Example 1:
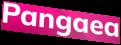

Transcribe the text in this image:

Pangaea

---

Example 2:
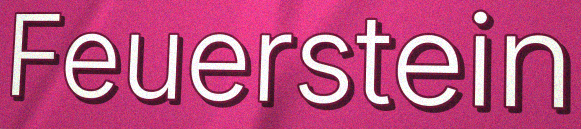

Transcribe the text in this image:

Feuerstein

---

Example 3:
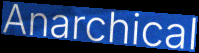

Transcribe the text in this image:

Anarchical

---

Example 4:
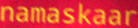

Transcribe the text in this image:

namaskaar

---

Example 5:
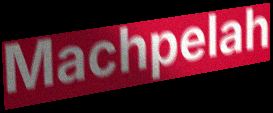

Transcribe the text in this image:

Machpelah